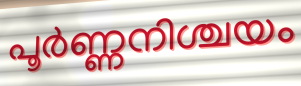
പൂർണ്ണനിശ്ചയം